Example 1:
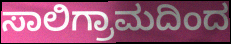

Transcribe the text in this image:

ಸಾಲಿಗ್ರಾಮದಿಂದ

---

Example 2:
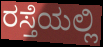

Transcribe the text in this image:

ರಸ್ತೆಯಲ್ಲಿ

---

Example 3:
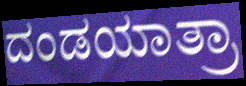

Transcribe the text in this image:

ದಂಡಯಾತ್ರಾ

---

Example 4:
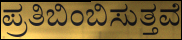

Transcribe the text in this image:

ಪ್ರತಿಬಿಂಬಿಸುತ್ತವೆ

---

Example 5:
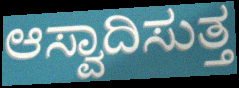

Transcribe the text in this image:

ಆಸ್ವಾದಿಸುತ್ತ